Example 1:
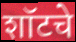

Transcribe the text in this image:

शॉटचे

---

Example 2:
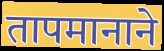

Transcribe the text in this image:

तापमानाने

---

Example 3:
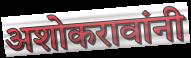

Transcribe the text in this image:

अशोकरावांनी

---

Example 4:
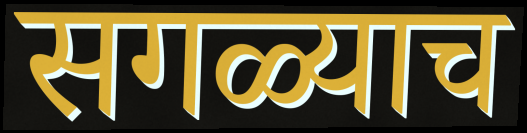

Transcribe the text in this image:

सगळ्याच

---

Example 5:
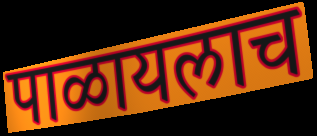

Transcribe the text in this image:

पाळायलाच